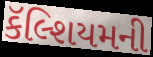
કૅલ્શિયમની